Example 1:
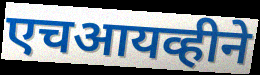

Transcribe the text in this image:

एचआयव्हीने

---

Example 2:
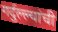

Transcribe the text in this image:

गर्दुल्ल्यांची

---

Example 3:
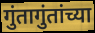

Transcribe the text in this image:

गुंतागुंतांच्या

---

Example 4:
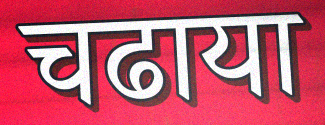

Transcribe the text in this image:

चढाया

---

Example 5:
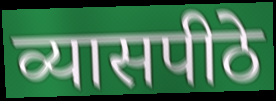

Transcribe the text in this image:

व्यासपीठे